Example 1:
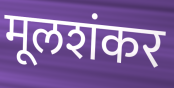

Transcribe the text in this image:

मूलशंकर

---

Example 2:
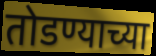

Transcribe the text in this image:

तोडण्याच्या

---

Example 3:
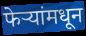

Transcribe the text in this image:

फेऱ्यांमधून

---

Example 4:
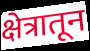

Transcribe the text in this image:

क्षेत्रातून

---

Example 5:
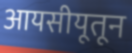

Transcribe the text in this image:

आयसीयूतून